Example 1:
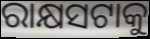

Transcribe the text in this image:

ରାକ୍ଷସଟାକୁ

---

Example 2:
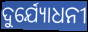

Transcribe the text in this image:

ଦୁର୍ଯ୍ୟୋଧନୀ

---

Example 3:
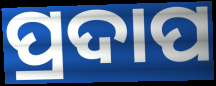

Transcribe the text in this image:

ପ୍ରଦାପ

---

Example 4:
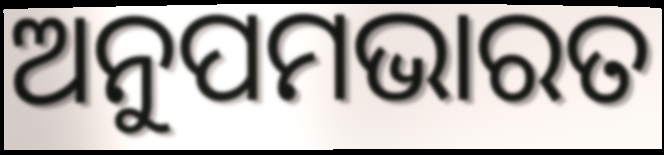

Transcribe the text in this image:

ଅନୁପମଭାରତ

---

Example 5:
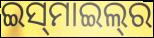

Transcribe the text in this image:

ଇସ୍‌ମାଇଲ୍‌ର